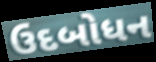
ઉદબોધન